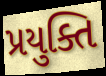
પ્રયુક્તિ